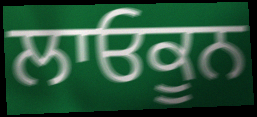
ਲਾਓਕੂਨ